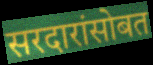
सरदारांसोबत